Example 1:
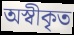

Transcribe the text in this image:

অস্বীকৃত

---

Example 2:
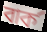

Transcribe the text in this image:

বার্ক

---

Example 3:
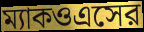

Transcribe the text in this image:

ম্যাকওএসের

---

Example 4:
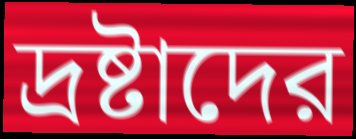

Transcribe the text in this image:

দ্রষ্টাদের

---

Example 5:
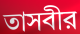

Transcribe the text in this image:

তাসবীর